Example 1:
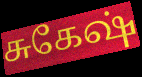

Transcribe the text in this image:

சுகேஷ்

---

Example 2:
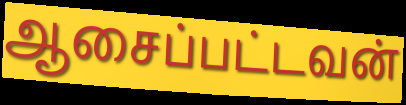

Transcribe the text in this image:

ஆசைப்பட்டவன்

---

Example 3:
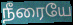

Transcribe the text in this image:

நீரையே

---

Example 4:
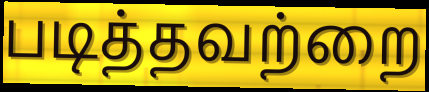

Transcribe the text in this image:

படித்தவற்றை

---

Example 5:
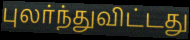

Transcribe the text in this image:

புலர்ந்துவிட்டது